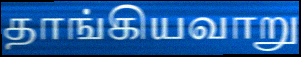
தாங்கியவாறு